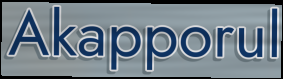
Akapporul